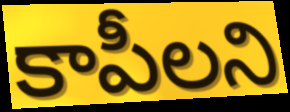
కాపీలని